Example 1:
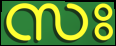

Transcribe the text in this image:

സഃ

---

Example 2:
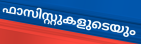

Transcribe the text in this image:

ഫാസിസ്റ്റുകളുടെയും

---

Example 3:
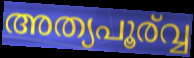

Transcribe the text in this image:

അത്യപൂര്വ്വ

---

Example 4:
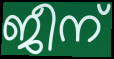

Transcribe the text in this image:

ജീന്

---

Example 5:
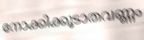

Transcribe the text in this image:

നോക്കിക്കൂടാതവണ്ണം